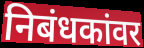
निबंधकांवर